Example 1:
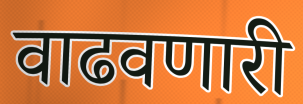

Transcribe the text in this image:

वाढवणारी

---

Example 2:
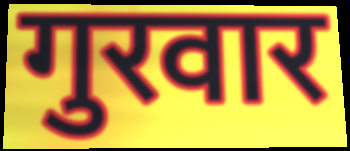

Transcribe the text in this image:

गुरवार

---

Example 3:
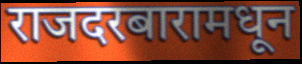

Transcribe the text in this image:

राजदरबारामधून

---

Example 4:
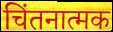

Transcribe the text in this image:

चिंतनात्मक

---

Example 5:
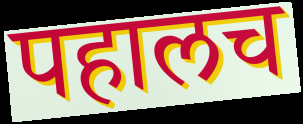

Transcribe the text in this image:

पहालच